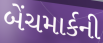
બેંચમાર્કની